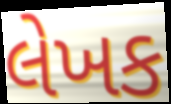
લેખક